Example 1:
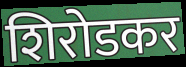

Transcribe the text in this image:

शिरोडकर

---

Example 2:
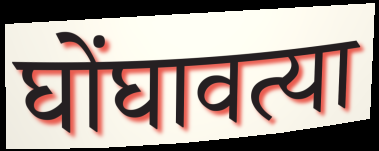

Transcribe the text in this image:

घोंघावत्या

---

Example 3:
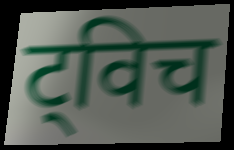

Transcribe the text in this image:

ट्विच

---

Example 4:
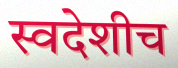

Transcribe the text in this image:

स्वदेशीच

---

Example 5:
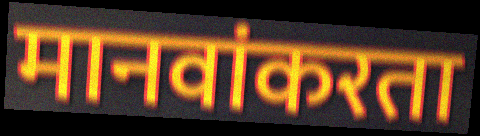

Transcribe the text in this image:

मानवांकरता